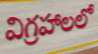
విగ్రహాలలో